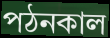
পঠনকাল